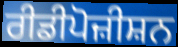
ਰੀਡੀਪੋਜ਼ੀਸ਼ਨ